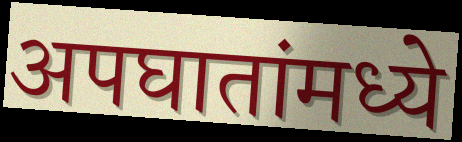
अपघातांमध्ये